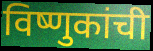
विष्णुकांची